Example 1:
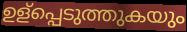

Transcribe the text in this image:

ഉള്പ്പെടുത്തുകയും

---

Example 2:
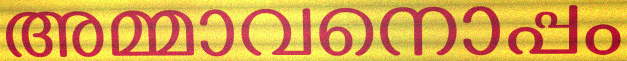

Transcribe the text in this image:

അമ്മാവനൊപ്പം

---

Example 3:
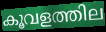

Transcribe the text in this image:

കൂവളത്തില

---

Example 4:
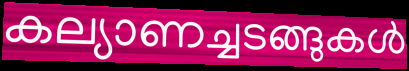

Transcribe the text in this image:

കല്യാണച്ചടങ്ങുകൾ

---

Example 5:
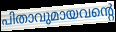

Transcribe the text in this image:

പിതാവുമായവന്റെ